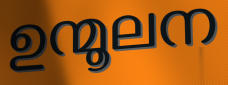
ഉന്മൂലന